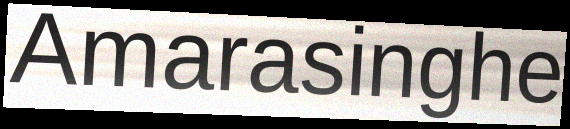
Amarasinghe